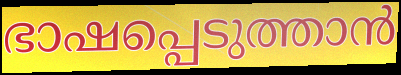
ഭാഷപ്പെടുത്താൻ